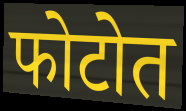
फोटोत